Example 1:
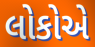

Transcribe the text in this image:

લોકોએ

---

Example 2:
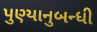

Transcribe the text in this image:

પુણ્યાનુબન્ધી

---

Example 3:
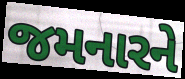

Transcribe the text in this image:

જમનારને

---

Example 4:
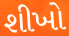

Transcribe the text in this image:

શીખો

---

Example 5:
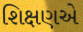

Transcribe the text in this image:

શિક્ષણએ